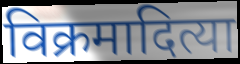
विक्रमादित्या